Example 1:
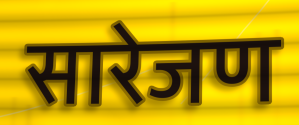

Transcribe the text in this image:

सारेजण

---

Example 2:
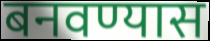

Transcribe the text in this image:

बनवण्यास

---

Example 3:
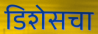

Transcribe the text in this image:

डिशेसचा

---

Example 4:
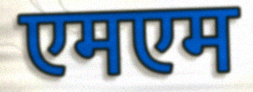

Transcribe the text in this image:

एमएम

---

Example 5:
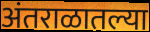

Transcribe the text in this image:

अंतराळातल्या